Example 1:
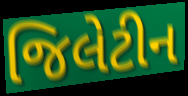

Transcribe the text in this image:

જિલેટીન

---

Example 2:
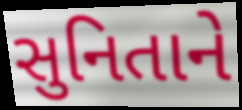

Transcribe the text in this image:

સુનિતાને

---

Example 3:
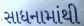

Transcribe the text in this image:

સાધનામાંથી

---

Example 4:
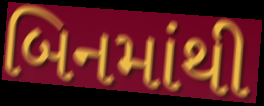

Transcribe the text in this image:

બિનમાંથી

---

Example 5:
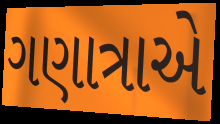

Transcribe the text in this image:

ગણાત્રાએ